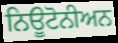
ਨਿਊਟੋਨੀਅਨ